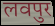
लवपुर